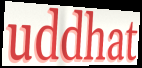
uddhat